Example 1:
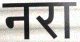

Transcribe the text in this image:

नरा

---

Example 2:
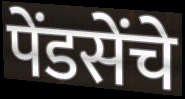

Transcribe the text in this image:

पेंडसेंचे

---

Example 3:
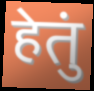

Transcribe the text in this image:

हेतुं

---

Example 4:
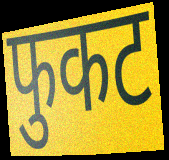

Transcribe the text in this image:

फुकट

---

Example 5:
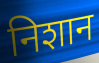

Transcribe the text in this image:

निशान